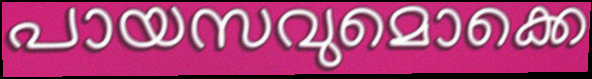
പായസവുമൊക്കെ